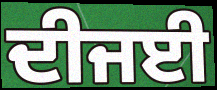
ਦੀਜਈ